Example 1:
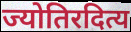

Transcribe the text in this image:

ज्योतिरदित्य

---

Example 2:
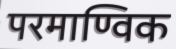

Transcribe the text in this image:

परमाण्विक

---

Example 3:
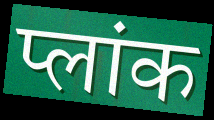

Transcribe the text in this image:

प्लांक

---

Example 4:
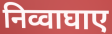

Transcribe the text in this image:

निव्वाघाए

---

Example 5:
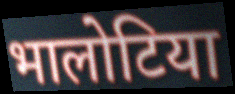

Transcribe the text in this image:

भालोटिया